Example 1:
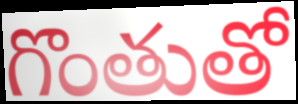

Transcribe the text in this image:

గొంతుతో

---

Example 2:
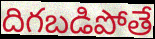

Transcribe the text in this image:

దిగబడిపోతే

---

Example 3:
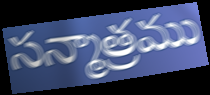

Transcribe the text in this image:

సన్మాత్రము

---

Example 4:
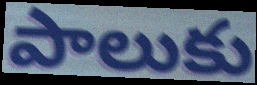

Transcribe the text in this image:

పాలుకు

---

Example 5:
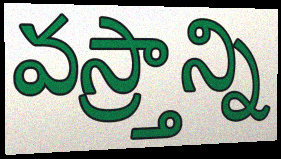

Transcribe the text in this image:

వస్ర్తాన్ని